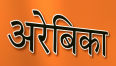
अरेबिका